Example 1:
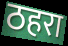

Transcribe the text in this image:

ठहरा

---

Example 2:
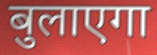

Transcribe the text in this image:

बुलाएगा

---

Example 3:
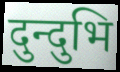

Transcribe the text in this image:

दुन्दुभि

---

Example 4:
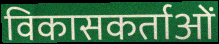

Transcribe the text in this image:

विकासकर्ताओं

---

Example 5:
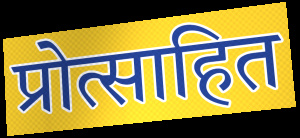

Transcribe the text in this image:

प्रोत्साहित